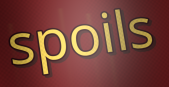
spoils